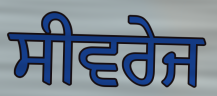
ਸੀਵਰੇਜ